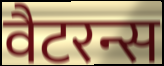
वैटरन्स